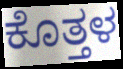
ಕೊತ್ತಳ